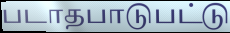
படாதபாடுபட்டு